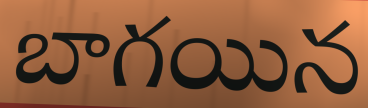
బాగయిన